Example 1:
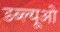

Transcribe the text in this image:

डब्ल्यूओ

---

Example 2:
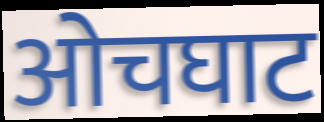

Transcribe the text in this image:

ओचघाट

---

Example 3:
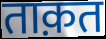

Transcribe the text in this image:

ताक़त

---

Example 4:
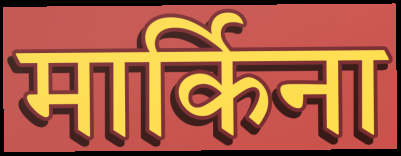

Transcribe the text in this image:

मार्किना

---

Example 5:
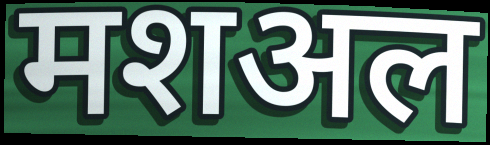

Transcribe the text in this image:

मशअल